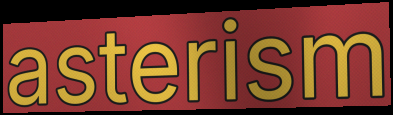
asterism